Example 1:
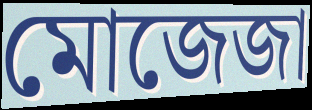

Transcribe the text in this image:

মোজেজা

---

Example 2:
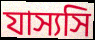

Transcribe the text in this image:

যাস্যসি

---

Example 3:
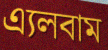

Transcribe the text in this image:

এ্যলবাম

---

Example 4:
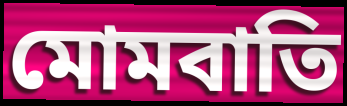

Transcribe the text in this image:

মোমবাতি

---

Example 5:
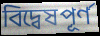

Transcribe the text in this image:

বিদ্বেষপূর্ণ